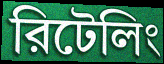
রিটেলিং